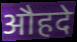
औहदे